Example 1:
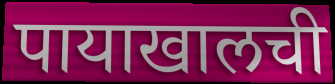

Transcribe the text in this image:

पायाखालची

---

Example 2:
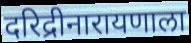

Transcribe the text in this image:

दरिद्रीनारायणाला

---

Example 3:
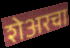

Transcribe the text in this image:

शेअरचा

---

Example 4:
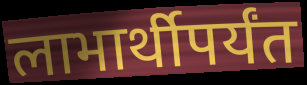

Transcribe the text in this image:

लाभार्थीपर्यंत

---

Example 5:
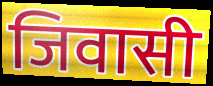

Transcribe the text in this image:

जिवासी